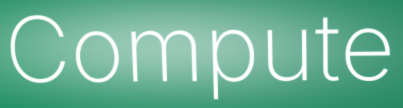
Compute